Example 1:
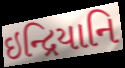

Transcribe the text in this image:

ઇન્દ્રિયાનિ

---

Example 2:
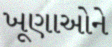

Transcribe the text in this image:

ખૂણાઓને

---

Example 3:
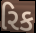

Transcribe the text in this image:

રિક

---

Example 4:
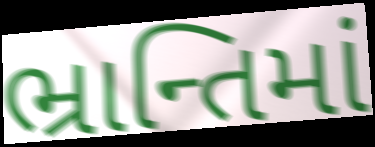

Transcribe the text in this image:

ભ્રાન્તિમાં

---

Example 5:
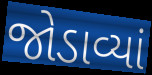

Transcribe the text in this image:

જોડાવ્યાં